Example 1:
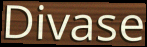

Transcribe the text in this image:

Divase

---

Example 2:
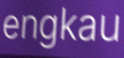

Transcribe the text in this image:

engkau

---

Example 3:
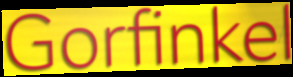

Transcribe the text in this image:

Gorfinkel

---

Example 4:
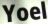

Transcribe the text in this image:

Yoel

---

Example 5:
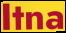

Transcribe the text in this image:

Itna